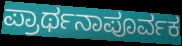
ಪ್ರಾರ್ಥನಾಪೂರ್ವಕ